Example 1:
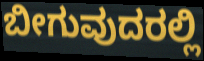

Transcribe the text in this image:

ಬೀಗುವುದರಲ್ಲಿ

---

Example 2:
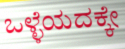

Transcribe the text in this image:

ಒಳ್ಳೆಯದಕ್ಕೇ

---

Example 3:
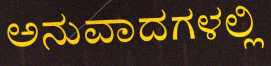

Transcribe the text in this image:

ಅನುವಾದಗಳಲ್ಲಿ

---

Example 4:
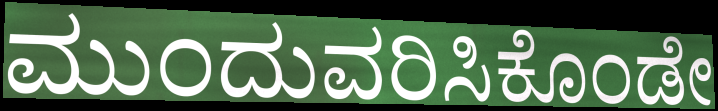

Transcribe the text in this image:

ಮುಂದುವರಿಸಿಕೊಂಡೇ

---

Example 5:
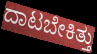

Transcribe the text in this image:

ದಾಟಬೇಕಿತ್ತು